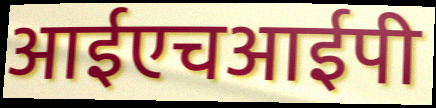
आईएचआईपी